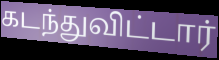
கடந்துவிட்டார்